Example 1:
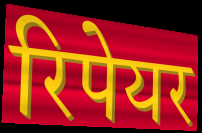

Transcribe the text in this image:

रिपेयर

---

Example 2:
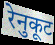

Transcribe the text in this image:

रेनुकूट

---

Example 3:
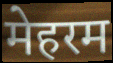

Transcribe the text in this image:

मेहरम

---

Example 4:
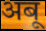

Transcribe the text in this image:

अबू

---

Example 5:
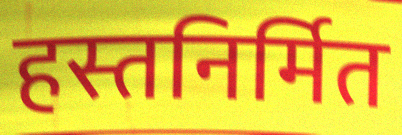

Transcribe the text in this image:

हस्तनिर्मित